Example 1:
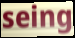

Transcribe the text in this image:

seing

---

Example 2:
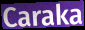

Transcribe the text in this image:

Caraka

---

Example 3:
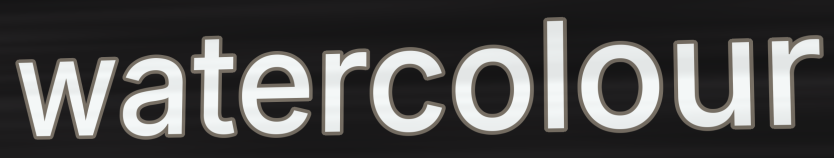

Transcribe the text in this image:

watercolour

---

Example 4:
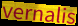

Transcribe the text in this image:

vernalis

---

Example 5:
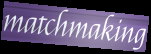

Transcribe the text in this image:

matchmaking